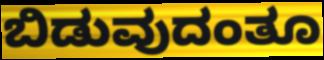
ಬಿಡುವುದಂತೂ